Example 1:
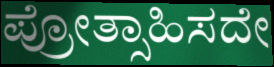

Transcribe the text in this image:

ಪ್ರೋತ್ಸಾಹಿಸದೇ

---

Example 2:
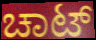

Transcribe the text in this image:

ಚಾಟ್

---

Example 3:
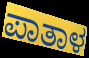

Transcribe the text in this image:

ಪಾತಾಳ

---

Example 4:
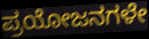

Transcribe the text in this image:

ಪ್ರಯೋಜನಗಳೇ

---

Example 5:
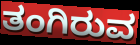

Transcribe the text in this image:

ತಂಗಿರುವ